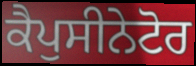
ਕੈਪੁਸੀਨੇਟੋਰ